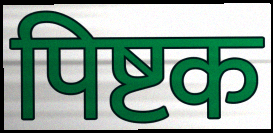
पिष्टक